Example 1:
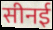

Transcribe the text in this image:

सीनई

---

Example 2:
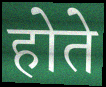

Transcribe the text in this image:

होते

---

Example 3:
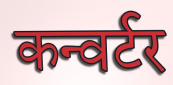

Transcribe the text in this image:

कन्वर्टर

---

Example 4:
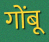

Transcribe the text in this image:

गोंबू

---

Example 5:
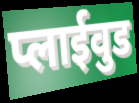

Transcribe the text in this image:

प्लाईवुड